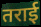
तराई